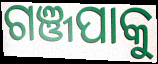
ଗଞ୍ଜପାକୁ